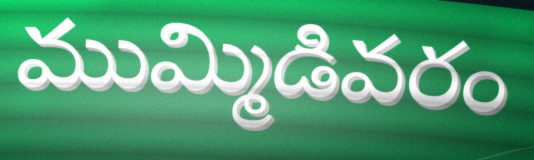
ముమ్మిడివరం